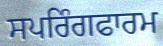
ਸਪਰਿੰਗਫਾਰਮ